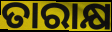
ତାରାକ୍ଷ